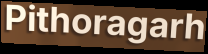
Pithoragarh